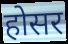
होसर